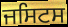
ਜਸਿਟਸ